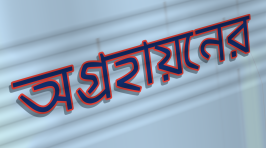
অগ্রহায়নের